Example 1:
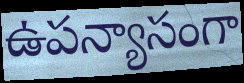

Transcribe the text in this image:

ఉపన్యాసంగా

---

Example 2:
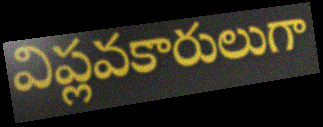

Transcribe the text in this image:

విప్లవకారులుగా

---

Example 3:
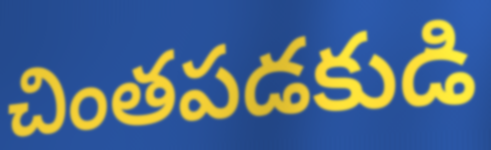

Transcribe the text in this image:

చింతపడకుడి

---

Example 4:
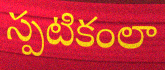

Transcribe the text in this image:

స్పటికంలా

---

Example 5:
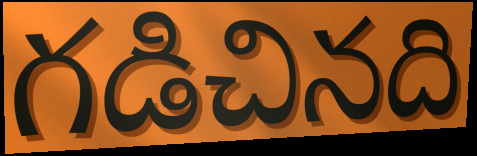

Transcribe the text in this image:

గడిచినది